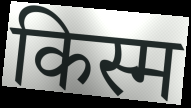
किस्‍म